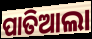
ପାତିଆଲା